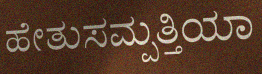
ಹೇತುಸಮ್ಪತ್ತಿಯಾ